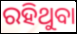
ରହିଥୁବା